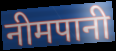
नीमपानी